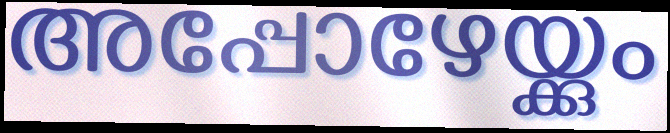
അപ്പോഴേയ്ക്കും